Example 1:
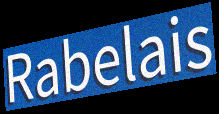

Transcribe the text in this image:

Rabelais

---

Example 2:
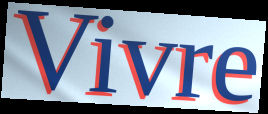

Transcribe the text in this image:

Vivre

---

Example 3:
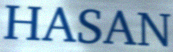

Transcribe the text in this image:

HASAN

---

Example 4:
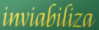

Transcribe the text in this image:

inviabiliza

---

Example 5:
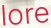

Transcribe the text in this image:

lore